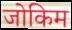
जोकिम